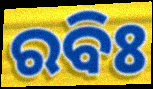
ରବିଃ